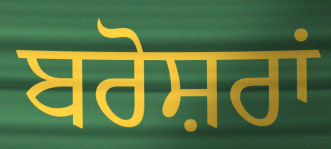
ਬਰੋਸ਼ਰਾਂ